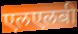
एलएलबी